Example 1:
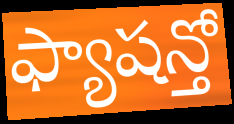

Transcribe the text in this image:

ఫ్యాషన్తో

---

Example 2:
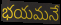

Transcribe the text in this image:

భయమనే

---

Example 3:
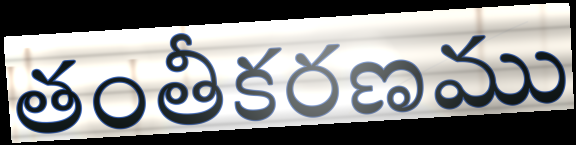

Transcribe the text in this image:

తంతీకరణము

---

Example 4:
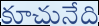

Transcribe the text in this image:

కూచునేది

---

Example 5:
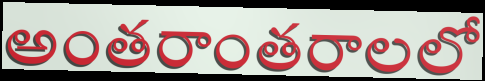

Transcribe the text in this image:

అంతరాంతరాలలో